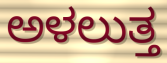
ಅಳಲುತ್ತ